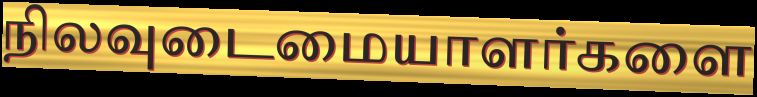
நிலவுடைமையாளர்களை